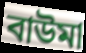
বাউমা